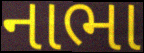
નાભા